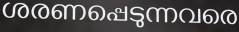
ശരണപ്പെടുന്നവരെ